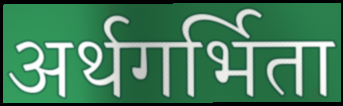
अर्थगर्भिता